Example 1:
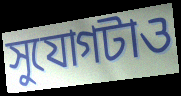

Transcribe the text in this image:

সুযোগটাও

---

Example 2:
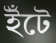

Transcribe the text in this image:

ইঁটে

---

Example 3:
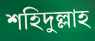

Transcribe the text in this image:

শহিদুল্লাহ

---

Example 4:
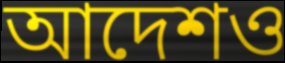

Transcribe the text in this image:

আদেশও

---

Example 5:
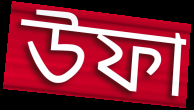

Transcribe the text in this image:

উফা